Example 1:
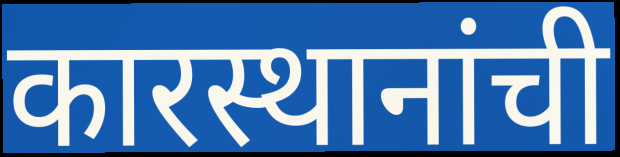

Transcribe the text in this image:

कारस्थानांची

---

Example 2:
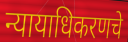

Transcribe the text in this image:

न्यायाधिकरणचे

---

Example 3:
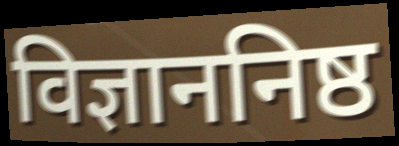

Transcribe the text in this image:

विज्ञाननिष्ठ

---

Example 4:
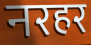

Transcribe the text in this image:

नरहर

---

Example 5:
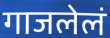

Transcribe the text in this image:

गाजलेलं